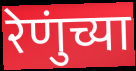
रेणुंच्या